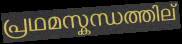
പ്രഥമസ്കന്ധത്തില്